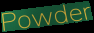
Powder